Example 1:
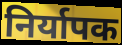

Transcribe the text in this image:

निर्यापक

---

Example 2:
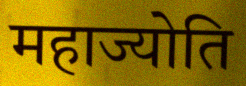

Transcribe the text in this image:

महाज्योति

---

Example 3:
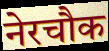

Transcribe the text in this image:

नेरचौक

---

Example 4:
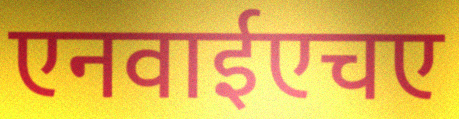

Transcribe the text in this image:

एनवाईएचए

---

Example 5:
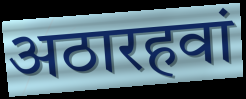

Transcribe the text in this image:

अठारहवां